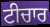
ਟੀਚਾਰ